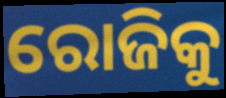
ରୋଜିକୁ